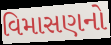
વિમાસણનો